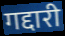
गद्दारी